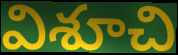
విశూచి